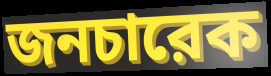
জনচারেক